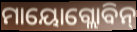
ମାୟୋଗ୍ଲୋବିନ୍